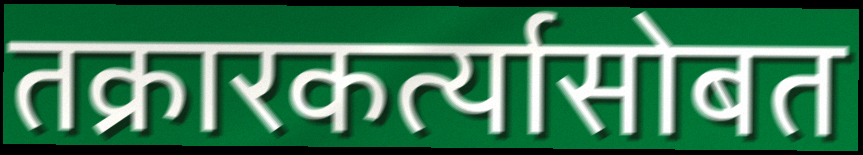
तक्रारकर्त्यासोबत